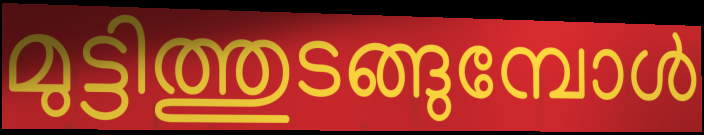
മുട്ടിത്തുടങ്ങുമ്പോൾ